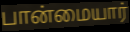
பான்மையார்